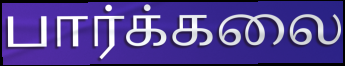
பார்க்கலை